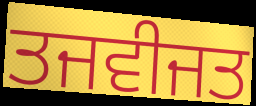
ਤਜਵੀਜਤ